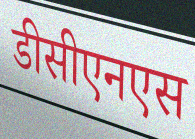
डीसीएनएस